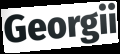
Georgii